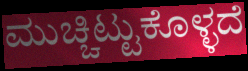
ಮುಚ್ಚಿಟ್ಟುಕೊಳ್ಳದೆ